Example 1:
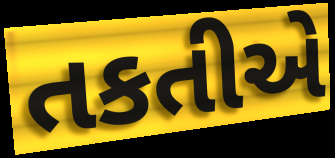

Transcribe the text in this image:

તકતીએ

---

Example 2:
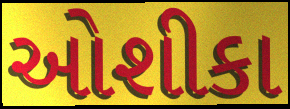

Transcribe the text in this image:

ઓશીકા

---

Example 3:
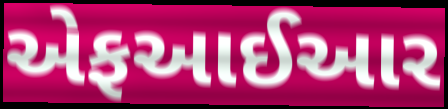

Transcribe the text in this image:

એફઆઈઆર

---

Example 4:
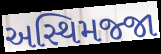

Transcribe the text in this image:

અસ્થિમજ્જા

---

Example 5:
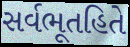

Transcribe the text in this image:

સર્વભૂતહિતે